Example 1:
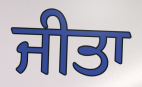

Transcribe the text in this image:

ਜੀਤਾ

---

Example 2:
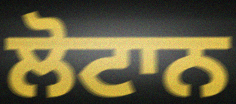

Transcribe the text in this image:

ਲੋਟਾਨ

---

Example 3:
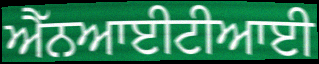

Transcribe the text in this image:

ਐੱਨਆਈਟੀਆਈ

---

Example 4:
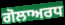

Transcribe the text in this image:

ਗੋਲਾਅਰਧ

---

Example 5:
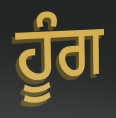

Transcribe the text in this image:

ਹੂੰਗ